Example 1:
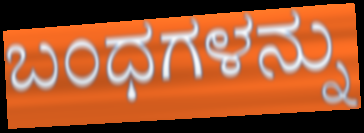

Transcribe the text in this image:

ಬಂಧಗಳನ್ನು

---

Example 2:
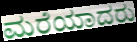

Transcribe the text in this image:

ಮರೆಯಾದರು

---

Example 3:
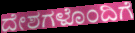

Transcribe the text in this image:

ದೇಶಗಳೊಂದಿಗೆ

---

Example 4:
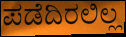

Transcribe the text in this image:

ಪಡೆದಿರಲಿಲ್ಲ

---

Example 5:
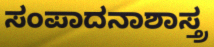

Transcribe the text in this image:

ಸಂಪಾದನಾಶಾಸ್ತ್ರ